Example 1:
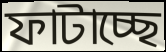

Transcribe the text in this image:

ফাটাচ্ছে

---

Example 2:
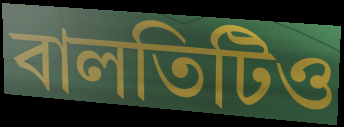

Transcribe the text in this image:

বালতিটিও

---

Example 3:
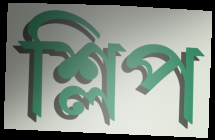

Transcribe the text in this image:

শ্লিপ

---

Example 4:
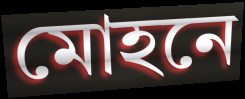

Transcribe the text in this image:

মোহনে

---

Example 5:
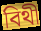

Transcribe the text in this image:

বিথী